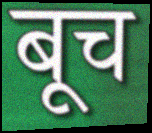
बूच